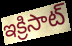
ఇక్రిసాట్